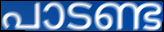
പാടണ്ട